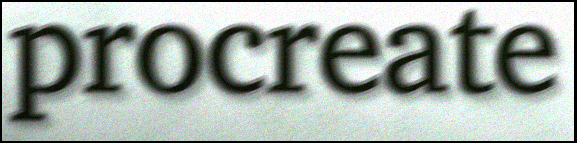
procreate